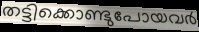
തട്ടിക്കൊണ്ടുപോയവർ